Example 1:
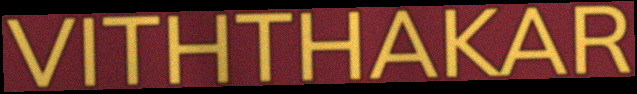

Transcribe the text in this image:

VITHTHAKAR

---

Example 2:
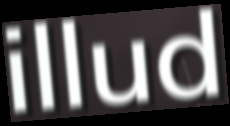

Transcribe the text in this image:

illud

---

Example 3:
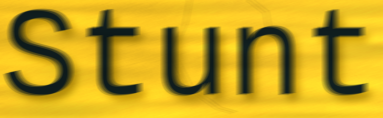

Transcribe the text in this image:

Stunt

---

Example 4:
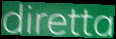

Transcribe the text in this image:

diretta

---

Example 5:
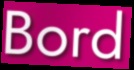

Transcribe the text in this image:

Bord